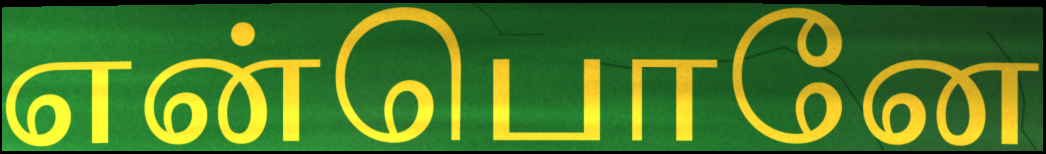
என்பொனே